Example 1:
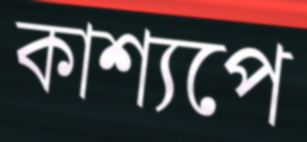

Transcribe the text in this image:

কাশ্যপে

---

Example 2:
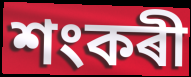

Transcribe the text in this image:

শংকৰী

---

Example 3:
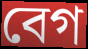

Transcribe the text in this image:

বেগ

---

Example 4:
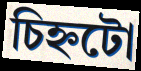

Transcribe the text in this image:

চিহ্নটো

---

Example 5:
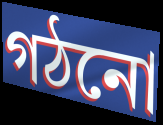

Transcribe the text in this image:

গঠনো